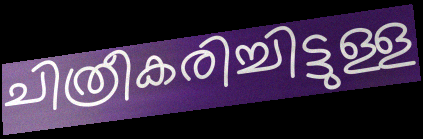
ചിത്രീകരിച്ചിട്ടുള്ള